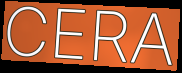
CERA